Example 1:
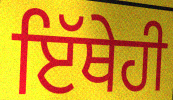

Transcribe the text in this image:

ਇੱਥੇਹੀ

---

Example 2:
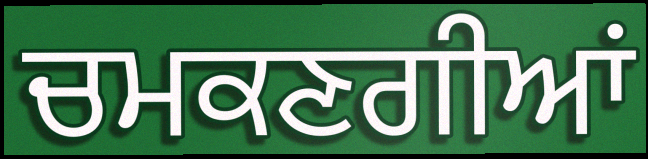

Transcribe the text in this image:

ਚਮਕਣਗੀਆਂ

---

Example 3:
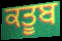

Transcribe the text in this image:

ਕਤੂਬ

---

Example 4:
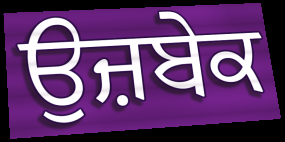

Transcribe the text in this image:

ਉਜ਼ਬੇਕ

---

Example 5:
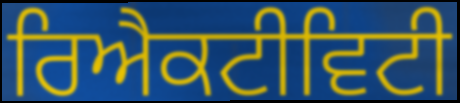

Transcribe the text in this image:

ਰਿਐਕਟੀਵਿਟੀ